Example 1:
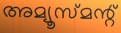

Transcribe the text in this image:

അമ്യൂസ്മന്റ്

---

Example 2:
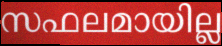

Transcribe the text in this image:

സഫലമായില്ല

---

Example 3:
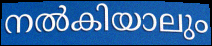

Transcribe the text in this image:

നൽകിയാലും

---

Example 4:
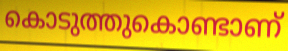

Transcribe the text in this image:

കൊടുത്തുകൊണ്ടാണ്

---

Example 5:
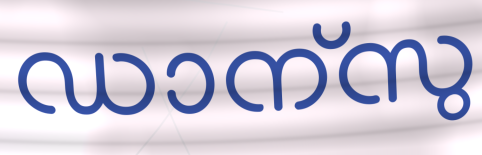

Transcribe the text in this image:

ഡാന്സു